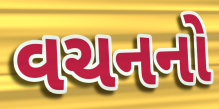
વચનનો